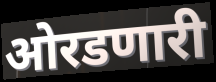
ओरडणारी